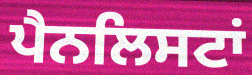
ਪੈਨਲਿਸਟਾਂ